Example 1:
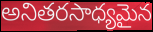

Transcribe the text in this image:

అనితరసాధ్యమైన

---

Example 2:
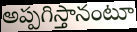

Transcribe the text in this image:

అప్పగిస్తానంటూ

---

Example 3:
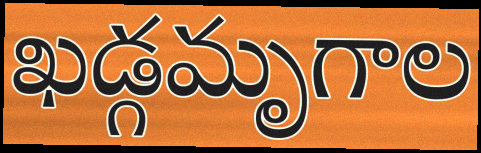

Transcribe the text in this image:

ఖడ్గమృగాల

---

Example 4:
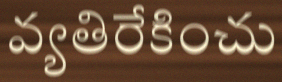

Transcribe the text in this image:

వ్యతిరేకించు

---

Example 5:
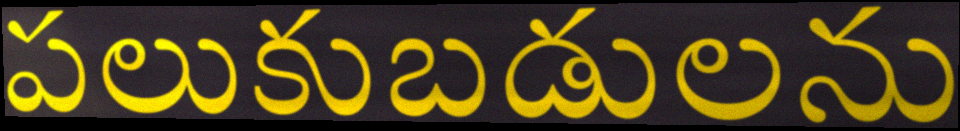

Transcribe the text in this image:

పలుకుబడులను